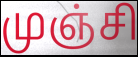
முஞ்சி